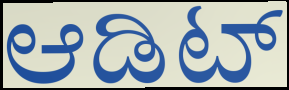
ಆಡಿಟ್